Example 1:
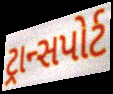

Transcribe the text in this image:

ટ્રાન્સપોર્ટ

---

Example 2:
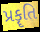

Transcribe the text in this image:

પ્રકૄતિ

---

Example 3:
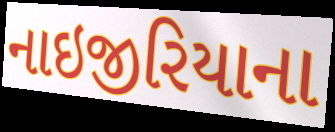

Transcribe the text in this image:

નાઇજીરિયાના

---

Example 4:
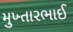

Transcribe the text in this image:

મુખ્તારભાઈ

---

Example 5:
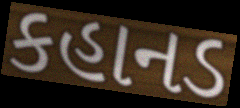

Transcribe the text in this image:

કહાનડ